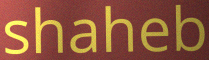
shaheb